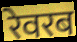
रेवरब